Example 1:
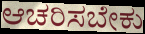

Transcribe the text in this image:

ಆಚರಿಸಬೇಕು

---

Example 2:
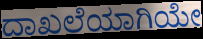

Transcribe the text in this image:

ದಾಖಲೆಯಾಗಿಯೇ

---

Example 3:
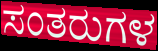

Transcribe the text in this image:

ಸಂತರುಗಳ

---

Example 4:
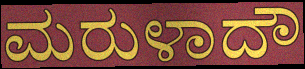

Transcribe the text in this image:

ಮರುಳಾದೌ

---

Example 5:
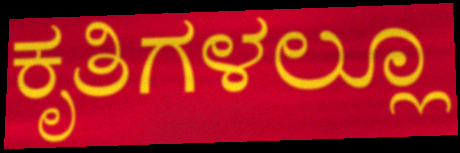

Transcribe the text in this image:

ಕೃತಿಗಳಲ್ಲೂ